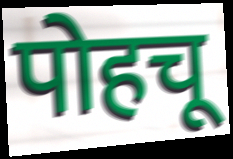
पोहचू